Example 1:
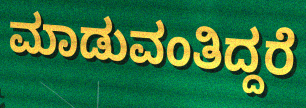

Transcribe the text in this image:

ಮಾಡುವಂತಿದ್ದರೆ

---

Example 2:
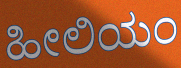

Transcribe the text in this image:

ಹೀಲಿಯಂ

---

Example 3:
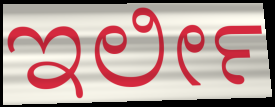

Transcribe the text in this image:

ಇರ್ಲೀ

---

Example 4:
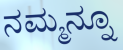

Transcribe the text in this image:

ನಮ್ಮನ್ನೂ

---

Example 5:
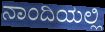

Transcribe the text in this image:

ನಾಂದಿಯಲ್ಲಿ